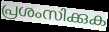
പ്രശംസിക്കുക